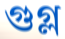
গুগ্ল